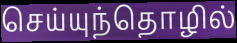
செய்யுந்தொழில்